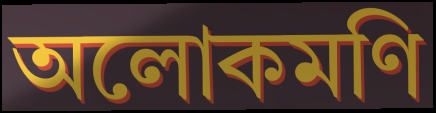
অলোকমণি